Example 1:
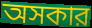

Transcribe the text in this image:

অসকার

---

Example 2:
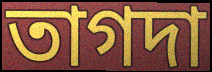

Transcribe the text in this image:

তাগদা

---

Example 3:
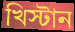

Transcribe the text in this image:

খিস্টান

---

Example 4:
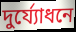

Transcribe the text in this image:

দুর্য্যোধনে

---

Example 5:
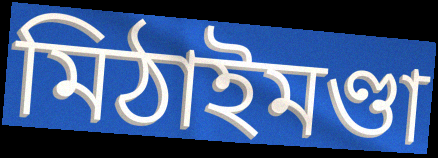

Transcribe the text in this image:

মিঠাইমণ্ডা